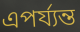
এপর্য্যন্ত